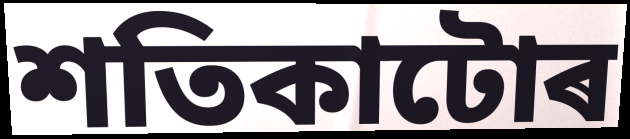
শতিকাটোৰ